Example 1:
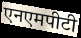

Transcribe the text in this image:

एनएमपीटी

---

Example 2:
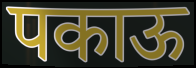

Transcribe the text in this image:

पकाऊ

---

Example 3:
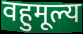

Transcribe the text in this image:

वहुमूल्य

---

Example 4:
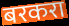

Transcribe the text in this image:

बरकरा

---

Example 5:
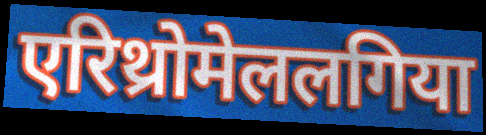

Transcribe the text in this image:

एरिथ्रोमेललगिया